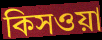
কিসওয়া